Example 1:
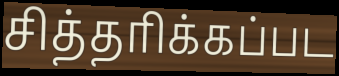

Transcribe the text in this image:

சித்தரிக்கப்பட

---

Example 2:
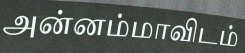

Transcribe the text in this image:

அன்னம்மாவிடம்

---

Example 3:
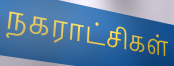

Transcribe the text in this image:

நகராட்சிகள்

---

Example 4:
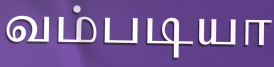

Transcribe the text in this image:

வம்படியா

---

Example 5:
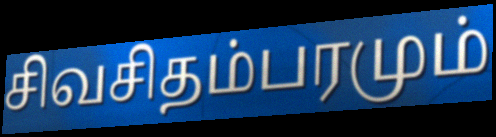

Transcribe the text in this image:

சிவசிதம்பரமும்